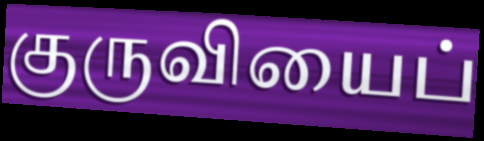
குருவியைப்